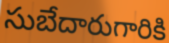
సుబేదారుగారికి